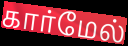
கார்மேல்